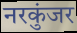
नरकुंजर